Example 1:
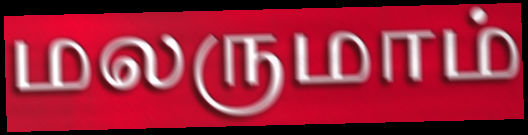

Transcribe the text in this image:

மலருமாம்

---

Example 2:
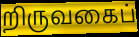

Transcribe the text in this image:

றிருவகைப்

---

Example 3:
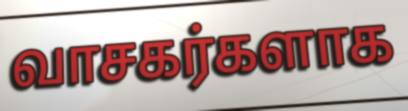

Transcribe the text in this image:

வாசகர்களாக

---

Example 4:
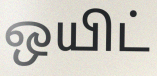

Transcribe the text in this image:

ஒயிட்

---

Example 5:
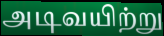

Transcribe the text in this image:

அடிவயிற்று